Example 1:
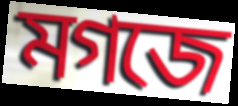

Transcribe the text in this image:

মগজে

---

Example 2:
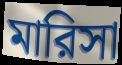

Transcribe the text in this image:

মারিসা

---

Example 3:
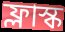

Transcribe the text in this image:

ফ্লাস্ক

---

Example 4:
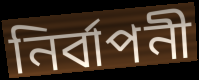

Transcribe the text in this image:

নির্বাপনী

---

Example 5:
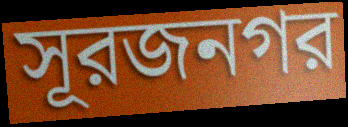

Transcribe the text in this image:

সূরজনগর